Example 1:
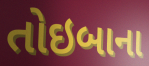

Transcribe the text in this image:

તોઇબાના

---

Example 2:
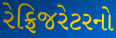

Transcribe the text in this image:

રેફ્રિજરેટરનો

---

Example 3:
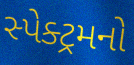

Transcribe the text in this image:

સ્પેક્ટ્રમનો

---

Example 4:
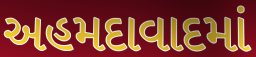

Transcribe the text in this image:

અહમદાવાદમાં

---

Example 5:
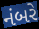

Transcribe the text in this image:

નંબરે